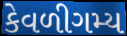
કેવળીગમ્ય